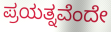
ಪ್ರಯತ್ನವೆಂದೇ